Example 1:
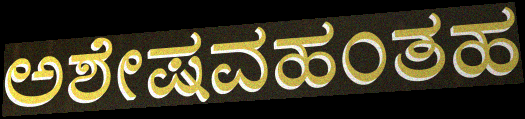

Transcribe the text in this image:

ಅಶೇಷವಹಂತಹ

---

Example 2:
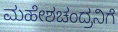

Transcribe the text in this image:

ಮಹೇಶಚಂದ್ರನಿಗೆ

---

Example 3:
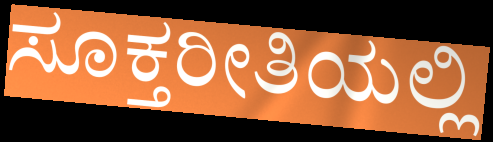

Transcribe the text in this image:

ಸೂಕ್ತರೀತಿಯಲ್ಲಿ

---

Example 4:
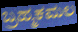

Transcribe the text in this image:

ಬ್ರಹ್ಮಕಮಲ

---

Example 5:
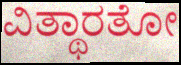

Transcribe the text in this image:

ವಿತ್ಥಾರತೋ